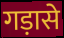
गड़ासे